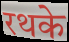
रथके